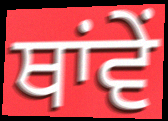
ਥਾਂਵੇਂ